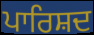
ਪਾਰਿਸ਼ਦ